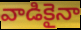
వాడికైనా